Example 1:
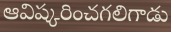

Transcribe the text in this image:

ఆవిష్కరించగలిగాడు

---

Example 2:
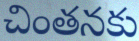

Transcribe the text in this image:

చింతనకు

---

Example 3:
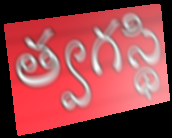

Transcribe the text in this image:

త్వగస్థి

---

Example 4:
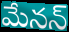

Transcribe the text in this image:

మేనన్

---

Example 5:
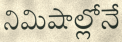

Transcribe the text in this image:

నిమిషాల్లోనే